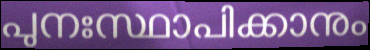
പുനഃസ്ഥാപിക്കാനും